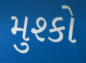
મુશ્કો